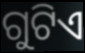
ଗୁଟିଏ